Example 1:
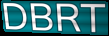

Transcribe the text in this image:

DBRT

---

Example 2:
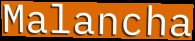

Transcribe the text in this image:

Malancha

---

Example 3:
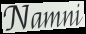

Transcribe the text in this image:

Namni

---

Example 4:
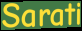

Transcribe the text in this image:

Sarati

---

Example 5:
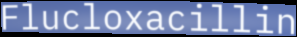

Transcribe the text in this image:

Flucloxacillin